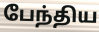
பேந்திய